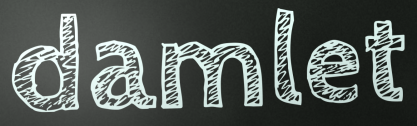
damlet